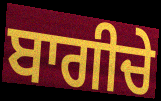
ਬਾਗੀਚੇ